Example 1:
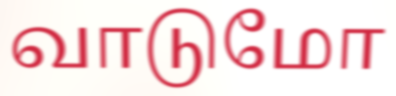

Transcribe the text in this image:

வாடுமோ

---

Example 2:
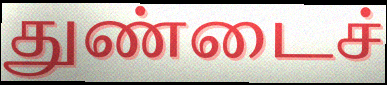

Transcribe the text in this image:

துண்டைச்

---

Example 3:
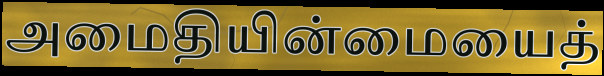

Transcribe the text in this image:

அமைதியின்மையைத்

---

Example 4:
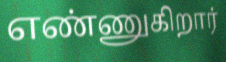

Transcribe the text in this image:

எண்ணுகிறார்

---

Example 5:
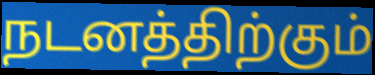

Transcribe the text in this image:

நடனத்திற்கும்